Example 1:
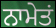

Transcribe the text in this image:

ਨਾਮੇਤਂ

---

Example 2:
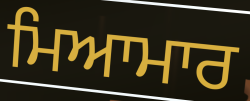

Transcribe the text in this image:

ਮਿਆਮਾਰ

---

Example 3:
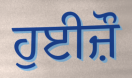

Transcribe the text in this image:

ਹੁਈਜ਼ੌ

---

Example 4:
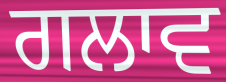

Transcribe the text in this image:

ਗਲਾਵ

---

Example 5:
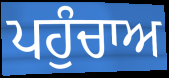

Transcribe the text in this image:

ਪਹੁੰਚਾਅ